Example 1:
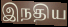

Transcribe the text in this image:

இநதிய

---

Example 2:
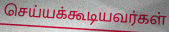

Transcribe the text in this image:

செய்யக்கூடியவர்கள்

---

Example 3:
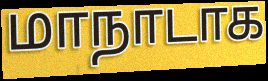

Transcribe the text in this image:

மாநாடாக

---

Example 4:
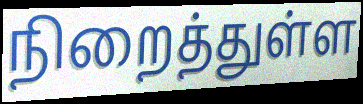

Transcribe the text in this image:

நிறைத்துள்ள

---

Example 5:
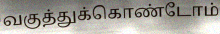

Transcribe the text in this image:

வகுத்துக்கொண்டோம்